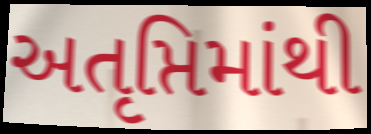
અતૃપ્તિમાંથી